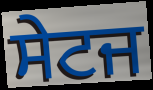
ਸੇਟਜ